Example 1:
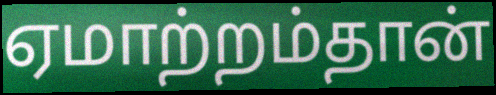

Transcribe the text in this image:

ஏமாற்றம்தான்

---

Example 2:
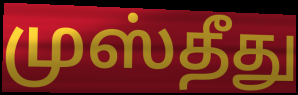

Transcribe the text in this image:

முஸ்தீது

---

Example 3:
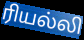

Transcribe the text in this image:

ரியல்லி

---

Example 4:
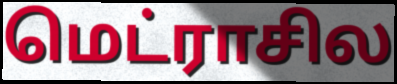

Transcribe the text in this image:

மெட்ராசில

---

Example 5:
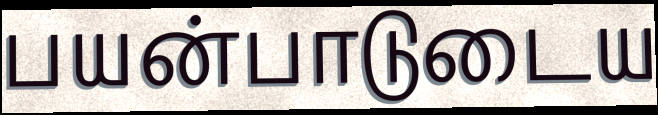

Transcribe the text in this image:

பயன்பாடுடைய